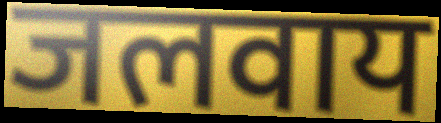
जलवाय